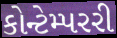
કોન્ટેમ્પરરી